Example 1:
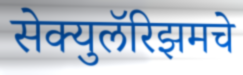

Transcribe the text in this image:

सेक्युलॅरिझमचे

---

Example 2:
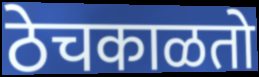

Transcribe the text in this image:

ठेचकाळतो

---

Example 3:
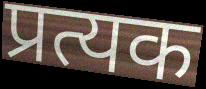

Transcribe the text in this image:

प्रत्यक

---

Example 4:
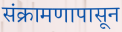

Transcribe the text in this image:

संक्रामणापासून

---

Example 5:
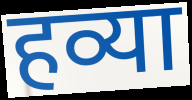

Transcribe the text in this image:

हव्या